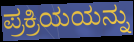
ಪ್ರಕ್ರಿಯಯನ್ನು